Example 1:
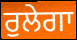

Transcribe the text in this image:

ਰੁਲੇਗਾ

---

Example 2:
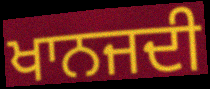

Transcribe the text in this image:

ਖਾਨਜਦੀ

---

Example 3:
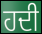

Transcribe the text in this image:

ਹਦੀ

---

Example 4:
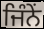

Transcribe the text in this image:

ਜਿੰਨੇਂ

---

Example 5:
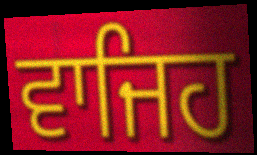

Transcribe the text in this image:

ਵਾਜਿਹ